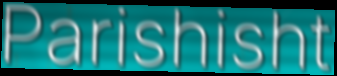
Parishisht